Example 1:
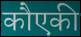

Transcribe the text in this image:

कौएकी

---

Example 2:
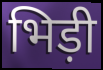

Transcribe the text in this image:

भिड़ी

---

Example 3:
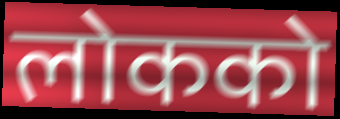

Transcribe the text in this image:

लोकको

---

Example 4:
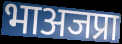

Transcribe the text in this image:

भाअजप्रा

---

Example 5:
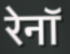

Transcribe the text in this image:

रेनॉ